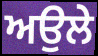
ਅਉਲੇ